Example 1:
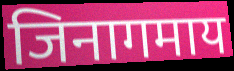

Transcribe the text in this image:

जिनागमाय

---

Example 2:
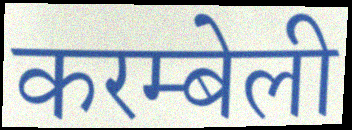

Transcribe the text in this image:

करम्बेली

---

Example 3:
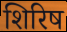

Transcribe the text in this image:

शिरिष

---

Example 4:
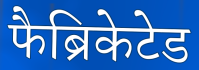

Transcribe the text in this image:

फैब्रिकेटेड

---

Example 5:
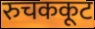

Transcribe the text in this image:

रुचककूट